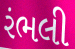
રંભલી